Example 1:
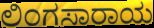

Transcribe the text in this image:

ಲಿಂಗಸಾರಾಯ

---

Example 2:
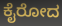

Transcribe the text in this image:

ಕೈರೋದ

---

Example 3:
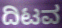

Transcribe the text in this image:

ದಿಟವ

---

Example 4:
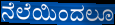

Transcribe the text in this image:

ನೆಲೆಯಿಂದಲೂ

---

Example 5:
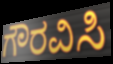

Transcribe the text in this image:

ಗೌರವಿಸಿ